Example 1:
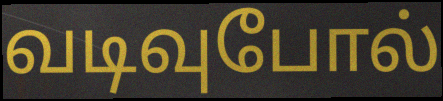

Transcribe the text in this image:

வடிவுபோல்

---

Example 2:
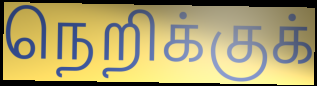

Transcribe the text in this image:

நெறிக்குக்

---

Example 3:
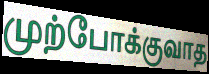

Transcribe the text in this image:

முற்போக்குவாத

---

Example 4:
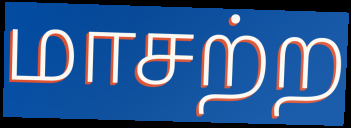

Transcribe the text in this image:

மாசற்ற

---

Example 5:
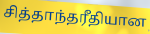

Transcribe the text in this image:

சித்தாந்தரீதியான